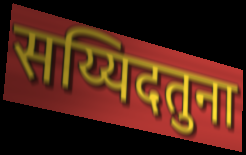
सय्यिदतुना